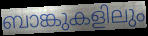
ബാങ്കുകളിലും